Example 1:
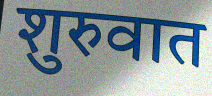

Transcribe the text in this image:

शुरुवात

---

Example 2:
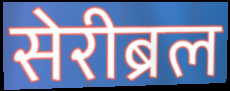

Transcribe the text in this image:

सेरीब्रल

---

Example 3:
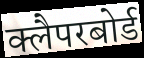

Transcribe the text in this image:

क्लैपरबोर्ड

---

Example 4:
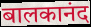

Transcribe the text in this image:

बालकानंद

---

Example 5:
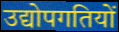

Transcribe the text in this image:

उद्योपगतियों